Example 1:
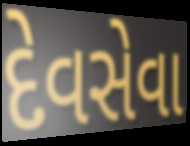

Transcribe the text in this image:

દેવસેવા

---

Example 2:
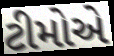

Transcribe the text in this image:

ટીમોએ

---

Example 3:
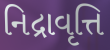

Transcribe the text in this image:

નિદ્રાવૃત્તિ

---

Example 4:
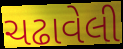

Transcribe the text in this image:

ચઢાવેલી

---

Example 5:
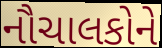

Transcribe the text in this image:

નૌચાલકોને